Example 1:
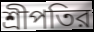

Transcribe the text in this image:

শ্রীপতির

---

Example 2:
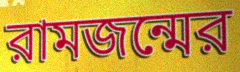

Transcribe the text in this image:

রামজন্মের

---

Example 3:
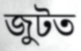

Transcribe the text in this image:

জুটত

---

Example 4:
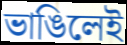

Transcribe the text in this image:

ভাঙিলেই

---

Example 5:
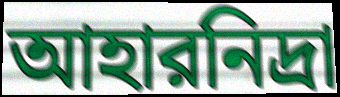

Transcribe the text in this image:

আহারনিদ্রা